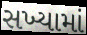
સખ્યામાં